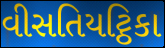
વીસતિયટ્ઠિકા